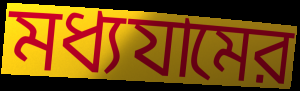
মধ্যযামের